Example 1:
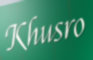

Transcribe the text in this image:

Khusro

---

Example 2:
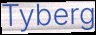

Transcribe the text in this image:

Tyberg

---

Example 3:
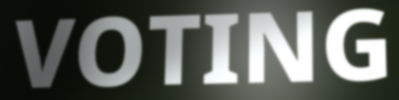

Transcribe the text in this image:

VOTING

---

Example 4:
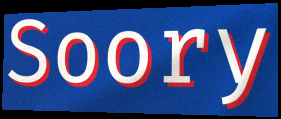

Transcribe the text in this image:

Soory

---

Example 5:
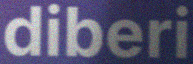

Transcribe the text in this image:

diberi